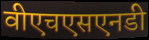
वीएचएसएनडी